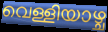
വെള്ളിയാഴ്ച